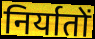
निर्यातों